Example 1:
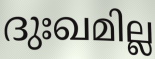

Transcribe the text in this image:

ദുഃഖമില്ല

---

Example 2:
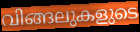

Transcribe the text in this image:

വിങ്ങലുകളുടെ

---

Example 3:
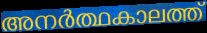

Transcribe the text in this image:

അനർത്ഥകാലത്ത്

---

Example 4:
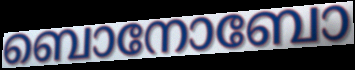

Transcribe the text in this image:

ബൊനോബോ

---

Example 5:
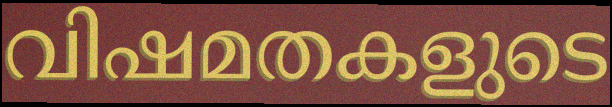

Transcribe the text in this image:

വിഷമതകളുടെ